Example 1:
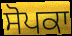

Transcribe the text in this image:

ਸੋਪਕਾ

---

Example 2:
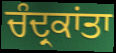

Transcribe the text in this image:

ਚੰਦ੍ਰਕਾਂਤਾ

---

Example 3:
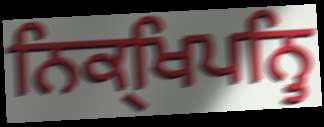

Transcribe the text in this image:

ਨਿਕ੍ਖਿਪਨ੍ਤਿ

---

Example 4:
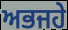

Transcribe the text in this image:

ਅਭਜਹੇ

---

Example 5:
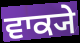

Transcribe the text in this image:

ਵਾਕ੍ਯੇ